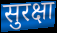
सुरक्षा